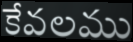
కేవలము